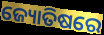
ଜ୍ୟୋତିଷରେ